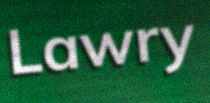
Lawry